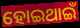
ହୋଇଥାଇଁ